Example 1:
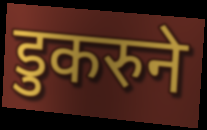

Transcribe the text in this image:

डुकरुने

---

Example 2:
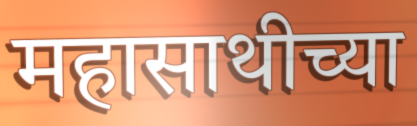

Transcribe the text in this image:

महासाथीच्या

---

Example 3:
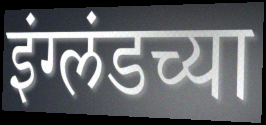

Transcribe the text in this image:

इंग्लंडच्या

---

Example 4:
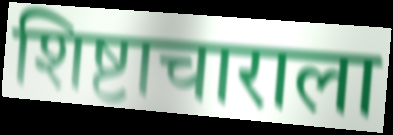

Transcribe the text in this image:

शिष्टाचाराला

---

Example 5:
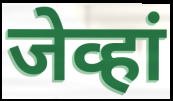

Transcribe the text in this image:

जेव्हां